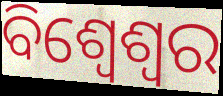
ବିଶ୍ୱେଶ୍ୱର